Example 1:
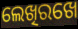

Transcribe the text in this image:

ଲେଖିରଖେ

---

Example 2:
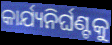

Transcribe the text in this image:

କାର୍ଯ୍ୟନିର୍ଘଣ୍ଟକୁ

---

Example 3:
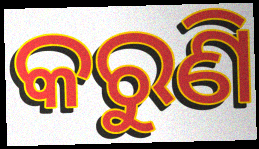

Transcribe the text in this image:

କରୁଣି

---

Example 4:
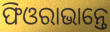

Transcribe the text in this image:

ଫିଓରାଭାନ୍ତେ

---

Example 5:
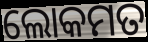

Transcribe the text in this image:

ଲୋକମତ